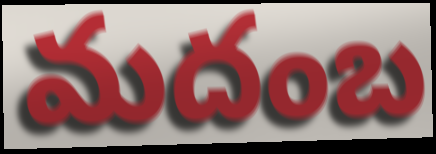
మదంబ